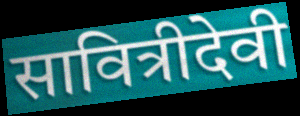
सावित्रीदेवी